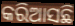
କରିଆସଛି